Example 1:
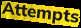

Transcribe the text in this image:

Attempts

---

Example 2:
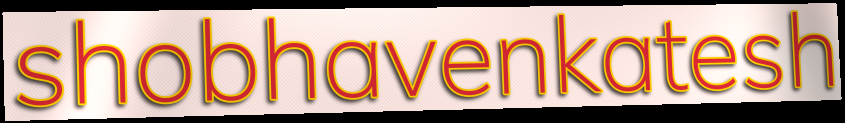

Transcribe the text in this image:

shobhavenkatesh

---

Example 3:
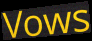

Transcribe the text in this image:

Vows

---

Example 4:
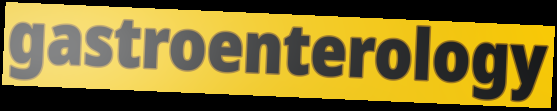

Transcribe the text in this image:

gastroenterology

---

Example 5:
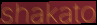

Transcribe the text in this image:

shakato